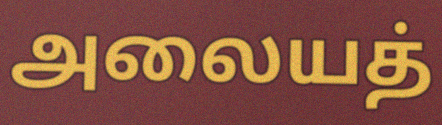
அலையத்